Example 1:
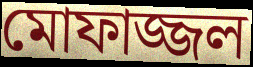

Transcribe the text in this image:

মোফাজ্জল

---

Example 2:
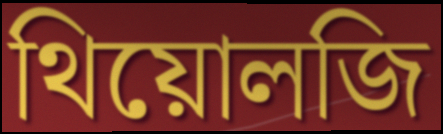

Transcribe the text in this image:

থিয়োলজি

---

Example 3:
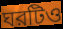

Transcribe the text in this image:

ঘরটিও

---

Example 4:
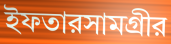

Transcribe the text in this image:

ইফতারসামগ্রীর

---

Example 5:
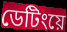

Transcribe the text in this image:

ডেটিংয়ে